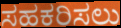
ಸಹಕರಿಸಲು